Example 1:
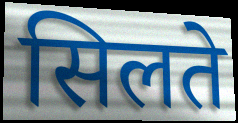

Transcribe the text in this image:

सिलते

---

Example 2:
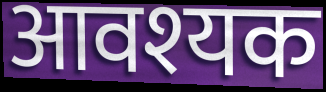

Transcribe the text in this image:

आवश्‍यक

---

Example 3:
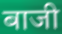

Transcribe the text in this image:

बाजी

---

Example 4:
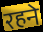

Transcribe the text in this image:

रहने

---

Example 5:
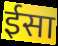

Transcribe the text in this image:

ईसा